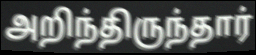
அறிந்திருந்தார்